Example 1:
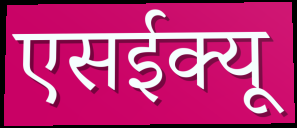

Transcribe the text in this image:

एसईक्यू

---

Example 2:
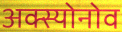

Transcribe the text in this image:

अक्स्योनोव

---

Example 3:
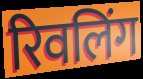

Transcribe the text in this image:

रिवलिंग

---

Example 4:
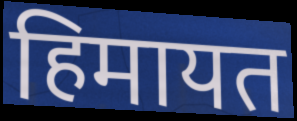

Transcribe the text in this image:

हिमायत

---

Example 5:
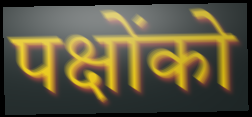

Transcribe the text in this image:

पक्षोंको